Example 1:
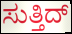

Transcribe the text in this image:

ಸುತ್ತಿದ್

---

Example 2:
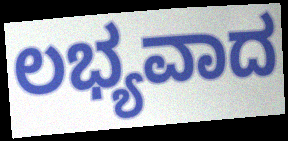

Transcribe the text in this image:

ಲಭ್ಯವಾದ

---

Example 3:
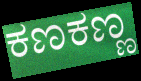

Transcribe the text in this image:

ಕಣಕಣ್ಣ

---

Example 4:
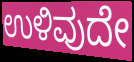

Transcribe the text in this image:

ಉಳಿವುದೇ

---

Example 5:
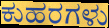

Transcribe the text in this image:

ಕುಹರಗಳು